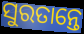
ସୁରତାନ୍ତେ